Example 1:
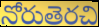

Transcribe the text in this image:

నోరుతెరచి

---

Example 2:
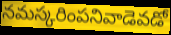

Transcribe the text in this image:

నమస్కరింపనివాడెవడో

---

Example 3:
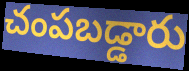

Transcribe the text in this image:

చంపబడ్డారు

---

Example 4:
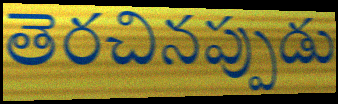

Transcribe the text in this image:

తెరచినప్పుడు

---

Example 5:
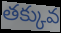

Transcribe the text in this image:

తక్కువ